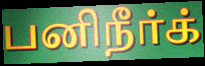
பனிநீர்க்